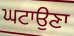
ਘਟਾਉਣਾ